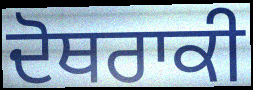
ਦੋਥਰਾਕੀ